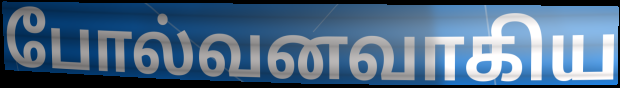
போல்வனவாகிய